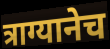
त्राग्यानेच